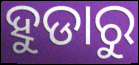
ହୁଡାରୁ